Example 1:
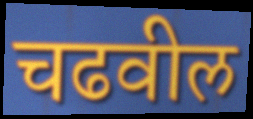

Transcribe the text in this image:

चढवील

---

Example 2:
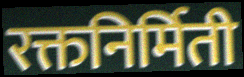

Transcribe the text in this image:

रक्तनिर्मिती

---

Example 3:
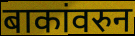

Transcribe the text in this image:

बाकांवरुन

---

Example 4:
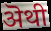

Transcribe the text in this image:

ऄथी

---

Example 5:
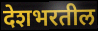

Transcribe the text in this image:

देशभरतील